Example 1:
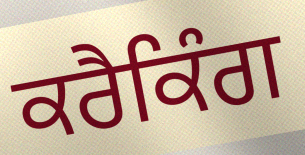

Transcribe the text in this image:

ਕਰੈਕਿੰਗ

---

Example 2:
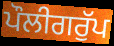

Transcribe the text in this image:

ਪੌਲੀਗਰੁੱਪ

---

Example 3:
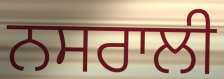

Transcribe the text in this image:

ਨਸਰਾਲੀ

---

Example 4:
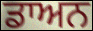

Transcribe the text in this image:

ਡਾਅਨ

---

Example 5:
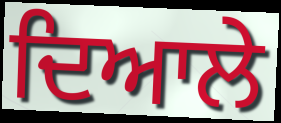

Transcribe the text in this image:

ਦਿਆਲੇ